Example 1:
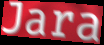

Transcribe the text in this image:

Jara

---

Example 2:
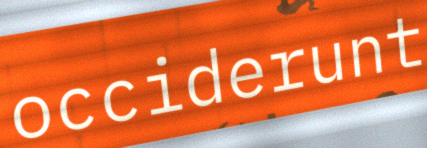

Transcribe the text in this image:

occiderunt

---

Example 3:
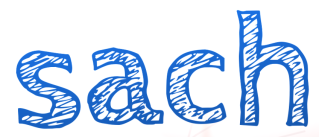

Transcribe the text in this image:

sach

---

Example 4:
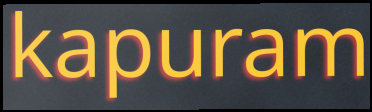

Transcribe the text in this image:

kapuram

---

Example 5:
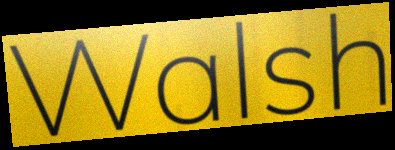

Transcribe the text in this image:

Walsh